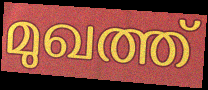
മുഖത്ത്